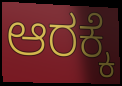
ಆರಕ್ಕೆ